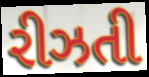
રીઝતી